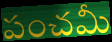
పంచమీ